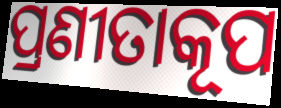
ପ୍ରଣୀତାକୂପ